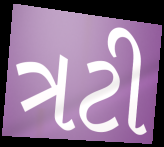
ત્રટી